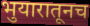
भुयारातूनच